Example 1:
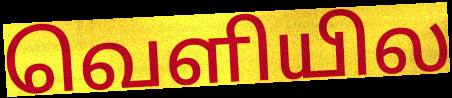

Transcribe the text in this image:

வெளியில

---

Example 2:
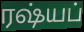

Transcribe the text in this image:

ரஷ்யப்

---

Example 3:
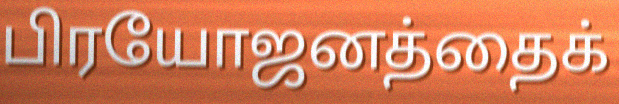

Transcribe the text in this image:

பிரயோஜனத்தைக்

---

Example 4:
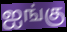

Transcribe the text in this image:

ஐங்கு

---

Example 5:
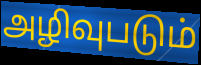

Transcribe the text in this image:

அழிவுபடும்